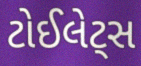
ટોઈલેટ્સ